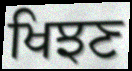
ਖਿਝਣ